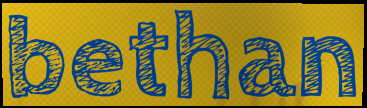
bethan